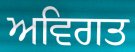
ਅਵਿਗਤ